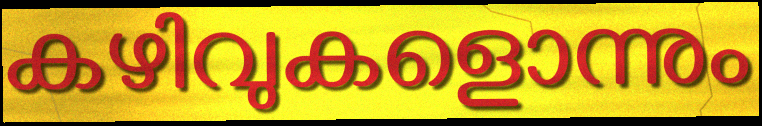
കഴിവുകളൊന്നും